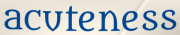
acuteness